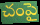
చంపై